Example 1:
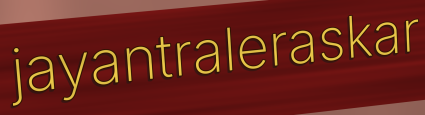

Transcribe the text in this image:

jayantraleraskar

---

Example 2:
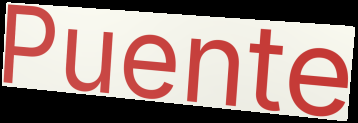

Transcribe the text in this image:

Puente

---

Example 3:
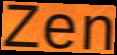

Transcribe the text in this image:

Zen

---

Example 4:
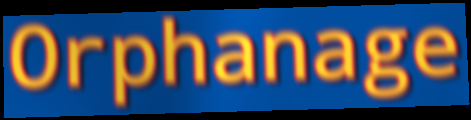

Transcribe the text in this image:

Orphanage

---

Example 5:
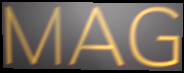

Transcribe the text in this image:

MAG